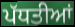
ਪੱਧਤੀਆਂ